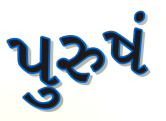
પુરુષં